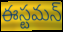
ఈస్టమన్